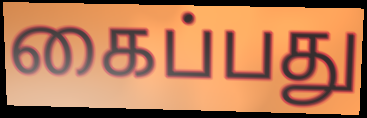
கைப்பது